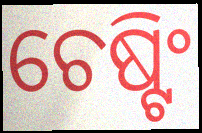
ଚେଷ୍ଟିଂ